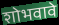
शोभवावे